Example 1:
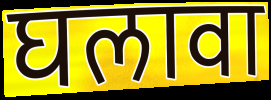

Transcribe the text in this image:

घलावा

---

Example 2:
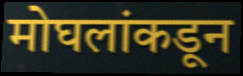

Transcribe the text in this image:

मोघलांकडून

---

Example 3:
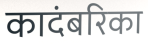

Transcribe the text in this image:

कादंबरिका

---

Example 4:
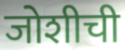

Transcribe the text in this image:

जोशीची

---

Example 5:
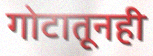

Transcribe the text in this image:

गोटातूनही